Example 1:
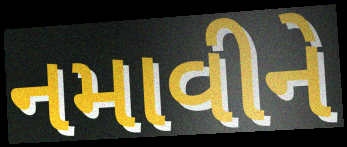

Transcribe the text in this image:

નમાવીને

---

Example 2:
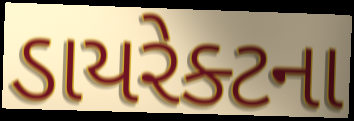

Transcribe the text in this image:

ડાયરેક્ટના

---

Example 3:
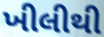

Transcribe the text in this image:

ખીલીથી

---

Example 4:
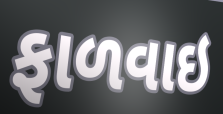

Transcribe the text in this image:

ફાળવાઇ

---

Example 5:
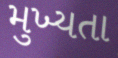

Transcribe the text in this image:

મુખ્યતા